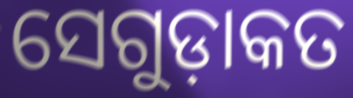
ସେଗୁଡ଼ାକତ